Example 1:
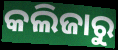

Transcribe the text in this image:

କଲିଜାରୁ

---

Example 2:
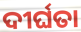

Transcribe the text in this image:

ଦୀର୍ଘତା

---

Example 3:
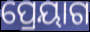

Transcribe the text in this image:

ପ୍ରେୟାଗ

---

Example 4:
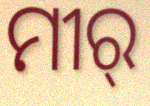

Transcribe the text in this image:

ମୀର୍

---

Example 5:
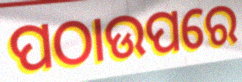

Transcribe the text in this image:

ପଠାଉପରେ